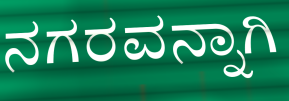
ನಗರವನ್ನಾಗಿ